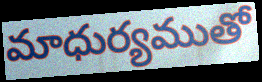
మాధుర్యముతో